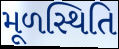
મૂળસ્થિતિ